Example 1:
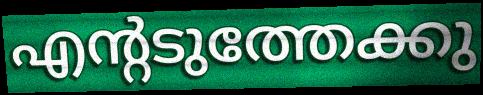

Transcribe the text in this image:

എന്റടുത്തേക്കു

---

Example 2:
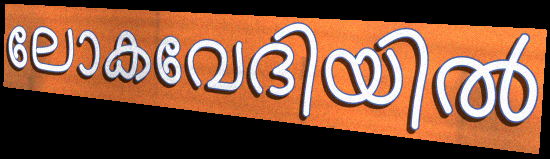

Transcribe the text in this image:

ലോകവേദിയിൽ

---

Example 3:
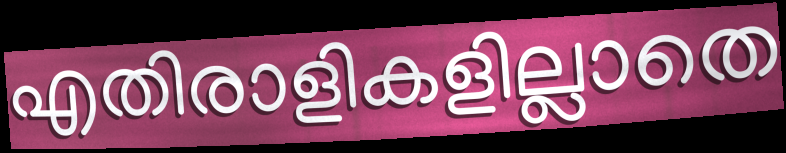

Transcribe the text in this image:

എതിരാളികളില്ലാതെ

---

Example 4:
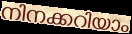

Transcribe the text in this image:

നിനക്കറിയാം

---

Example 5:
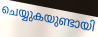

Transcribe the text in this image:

ചെയ്യുകയുണ്ടായി